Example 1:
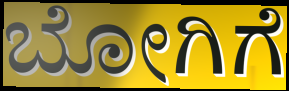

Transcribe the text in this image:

ಬೋಗಿಗೆ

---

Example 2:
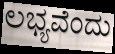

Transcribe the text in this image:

ಲಭ್ಯವೆಂದು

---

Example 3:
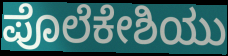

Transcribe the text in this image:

ಪೊಲೆಕೇಶಿಯು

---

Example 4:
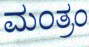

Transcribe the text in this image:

ಮಂತ್ರಂ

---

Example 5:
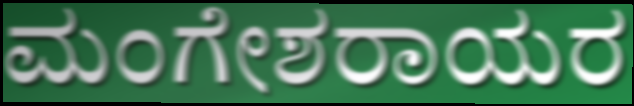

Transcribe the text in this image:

ಮಂಗೇಶರಾಯರ